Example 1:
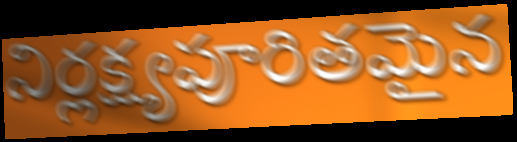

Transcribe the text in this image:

నిర్లక్ష్యపూరితమైన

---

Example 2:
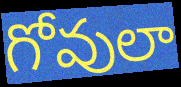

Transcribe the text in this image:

గోవులా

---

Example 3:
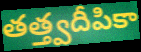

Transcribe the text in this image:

తత్త్వదీపికా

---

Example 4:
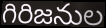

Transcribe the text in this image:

గిరిజనుల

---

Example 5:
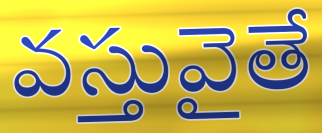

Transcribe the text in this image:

వస్తువైతే